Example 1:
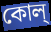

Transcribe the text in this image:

কোল্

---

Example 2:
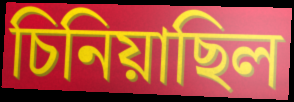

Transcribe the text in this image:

চিনিয়াছিল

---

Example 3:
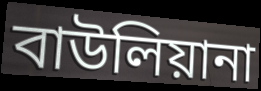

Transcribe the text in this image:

বাউলিয়ানা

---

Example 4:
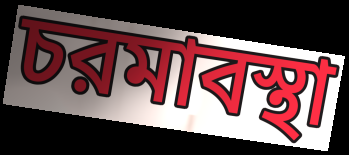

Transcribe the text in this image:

চরমাবস্থা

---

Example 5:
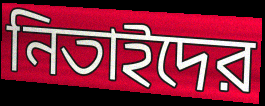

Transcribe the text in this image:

নিতাইদের